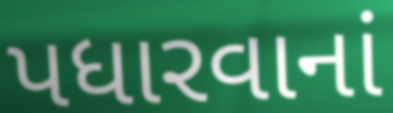
પધારવાનાં